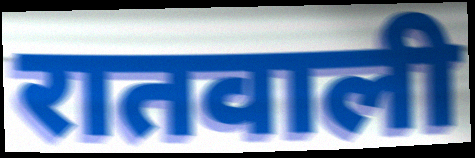
रातवाली